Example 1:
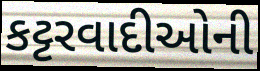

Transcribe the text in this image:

કટ્ટરવાદીઓની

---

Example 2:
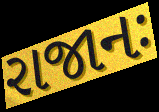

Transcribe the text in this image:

રાજાનઃ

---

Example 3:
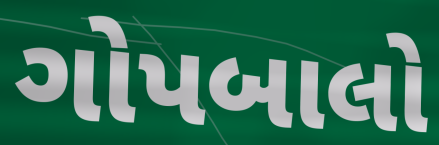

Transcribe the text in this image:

ગોપબાલો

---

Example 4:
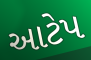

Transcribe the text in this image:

આટેપ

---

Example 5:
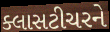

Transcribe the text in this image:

ક્લાસટીચરને